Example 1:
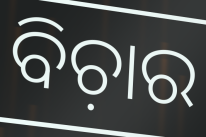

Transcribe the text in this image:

ବିଚ଼ାର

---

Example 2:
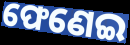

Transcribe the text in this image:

ଫେଣେଇ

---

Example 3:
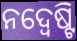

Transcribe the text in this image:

ନଦ୍ୱେଷ୍ଟି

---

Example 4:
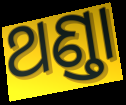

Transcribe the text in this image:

ଥଣ୍ଡା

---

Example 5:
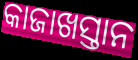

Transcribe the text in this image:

କାଜାଖସ୍ତାନ